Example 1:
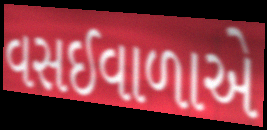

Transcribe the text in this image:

વસઈવાળાએ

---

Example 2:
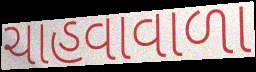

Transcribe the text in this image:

ચાહવાવાળા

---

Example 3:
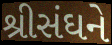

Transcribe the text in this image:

શ્રીસંઘને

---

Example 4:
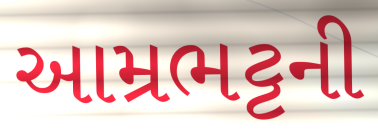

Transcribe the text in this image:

આમ્રભટ્ટની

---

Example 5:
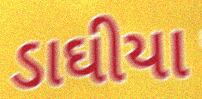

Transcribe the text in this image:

ડાઘીયા